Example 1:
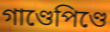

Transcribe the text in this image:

গাণ্ডেপিণ্ডে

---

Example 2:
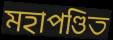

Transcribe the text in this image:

মহাপণ্ডিত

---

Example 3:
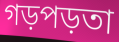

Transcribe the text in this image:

গড়পড়তা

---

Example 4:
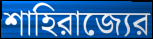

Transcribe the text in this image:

শাহিরাজ্যের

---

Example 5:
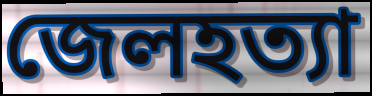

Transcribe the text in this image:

জেলহত্যা